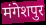
मंगेशपुर